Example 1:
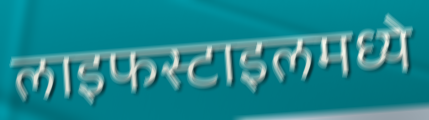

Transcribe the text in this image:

लाइफस्टाइलमध्ये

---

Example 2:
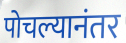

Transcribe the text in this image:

पोचल्यानंतर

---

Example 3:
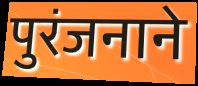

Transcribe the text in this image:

पुरंजनाने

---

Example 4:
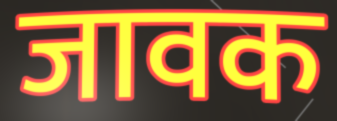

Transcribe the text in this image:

जावक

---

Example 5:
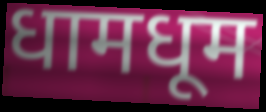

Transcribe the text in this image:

धामधूम